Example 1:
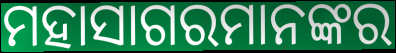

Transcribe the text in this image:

ମହାସାଗରମାନଙ୍କର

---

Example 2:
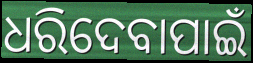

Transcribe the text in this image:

ଧରିଦେବାପାଇଁ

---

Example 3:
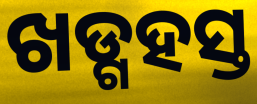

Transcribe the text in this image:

ଖଡ୍ଗହସ୍ତ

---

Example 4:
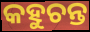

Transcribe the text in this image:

କହୁଚନ୍ତ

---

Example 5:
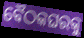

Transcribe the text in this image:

ବୈଠକଘରକୁ